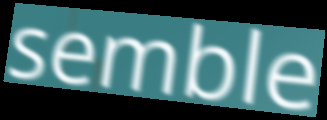
semble